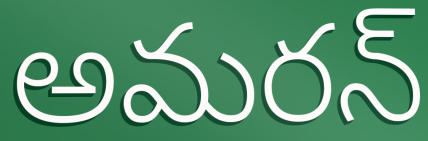
అమరన్